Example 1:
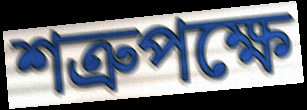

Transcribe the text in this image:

শত্রুপক্ষে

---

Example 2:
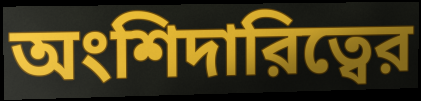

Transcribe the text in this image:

অংশিদারিত্বের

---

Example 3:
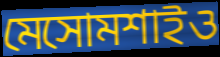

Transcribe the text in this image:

মেসোমশাইও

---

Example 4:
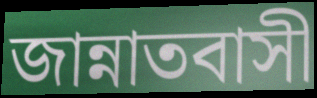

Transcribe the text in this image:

জান্নাতবাসী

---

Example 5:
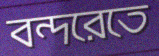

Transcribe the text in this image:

বন্দরেতে